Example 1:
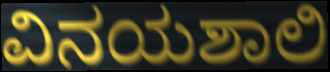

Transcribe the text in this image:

ವಿನಯಶಾಲಿ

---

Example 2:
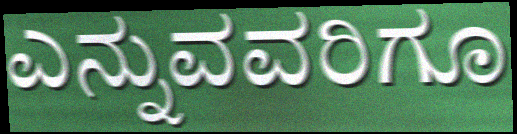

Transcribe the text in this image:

ಎನ್ನುವವರಿಗೂ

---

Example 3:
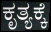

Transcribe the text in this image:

ಕೃತ್ಯಕ್ಕೆ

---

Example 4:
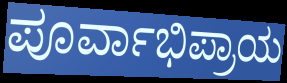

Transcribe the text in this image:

ಪೂರ್ವಾಭಿಪ್ರಾಯ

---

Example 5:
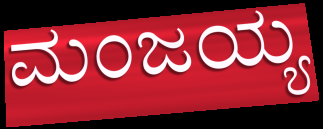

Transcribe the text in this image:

ಮಂಜಯ್ಯ